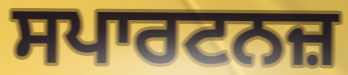
ਸਪਾਰਟਨਜ਼